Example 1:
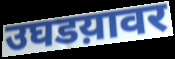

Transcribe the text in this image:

उघडय़ावर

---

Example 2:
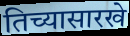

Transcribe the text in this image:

तिच्यासारखे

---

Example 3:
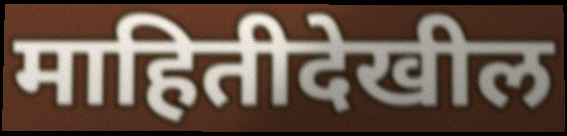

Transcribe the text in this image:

माहितीदेखील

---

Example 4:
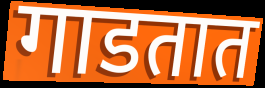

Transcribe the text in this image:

गाडतात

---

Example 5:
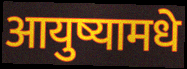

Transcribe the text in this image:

आयुष्यामधे